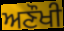
ਅਣੌਖੀ